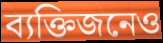
ব্যক্তিজনেও